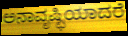
ಅನಾವೃಷ್ಟಿಯಾದರೆ